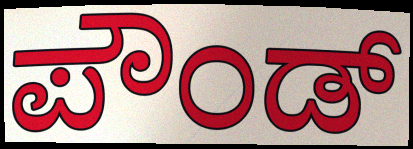
ಪೌಂಡ್